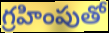
గ్రహింపుతో